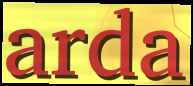
arda